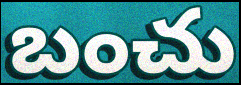
బంచు